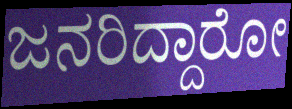
ಜನರಿದ್ದಾರೋ